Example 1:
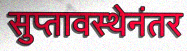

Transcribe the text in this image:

सुप्तावस्थेनंतर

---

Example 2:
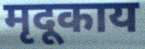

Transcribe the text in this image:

मृदूकाय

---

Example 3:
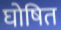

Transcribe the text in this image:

घोषित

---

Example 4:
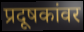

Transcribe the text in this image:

प्रदूषकांवर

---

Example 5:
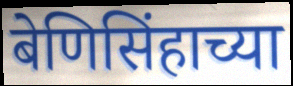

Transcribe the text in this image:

बेणिसिंहाच्या